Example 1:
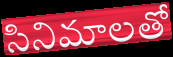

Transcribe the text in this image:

సినిమాలతో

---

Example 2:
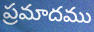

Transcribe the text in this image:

ప్రమాదము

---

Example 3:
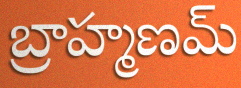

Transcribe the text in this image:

బ్రాహ్మణమ్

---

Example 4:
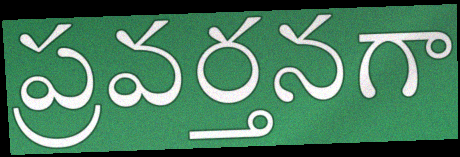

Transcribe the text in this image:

ప్రవర్తనగా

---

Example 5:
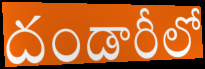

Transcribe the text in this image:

దండారీలో